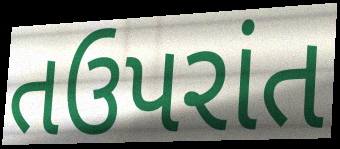
તઉપરાંત